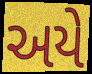
અયે